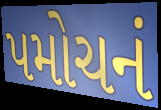
પમોચનં